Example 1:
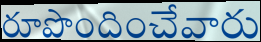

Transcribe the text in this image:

రూపొందించేవారు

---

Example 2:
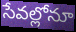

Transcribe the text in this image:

సేవల్లోనూ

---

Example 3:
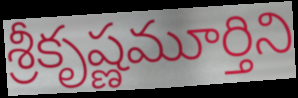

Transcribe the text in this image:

శ్రీకృష్ణమూర్తిని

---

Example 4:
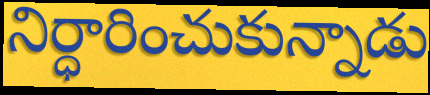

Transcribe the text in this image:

నిర్ధారించుకున్నాడు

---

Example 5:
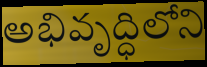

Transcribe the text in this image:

అభివృద్ధిలోని